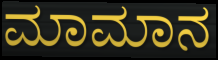
ಮಾಮಾನ